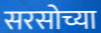
सरसोच्या